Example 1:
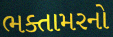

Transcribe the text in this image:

ભક્તામરનો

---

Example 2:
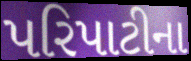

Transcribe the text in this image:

પરિપાટીના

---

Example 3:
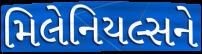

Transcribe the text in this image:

મિલેનિયલ્સને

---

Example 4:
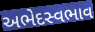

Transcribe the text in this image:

અભેદસ્વભાવ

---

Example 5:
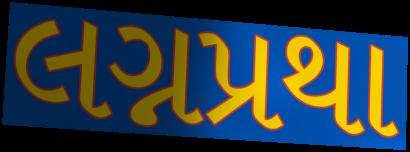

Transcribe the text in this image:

લગ્નપ્રથા